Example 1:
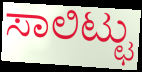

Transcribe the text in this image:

ಸಾಲಿಟ್ಟು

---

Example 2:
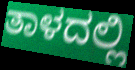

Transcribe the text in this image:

ತಾಳದಲ್ಲಿ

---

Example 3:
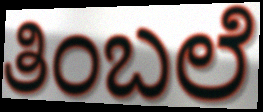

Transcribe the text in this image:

ತಿಂಬಲೆ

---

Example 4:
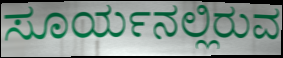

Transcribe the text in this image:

ಸೂರ್ಯನಲ್ಲಿರುವ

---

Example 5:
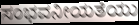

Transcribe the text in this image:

ಸಂಭವನೀಯತೆಯು